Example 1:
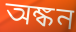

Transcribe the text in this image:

অঙ্কন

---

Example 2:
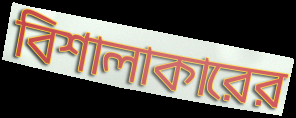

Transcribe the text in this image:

বিশালাকারের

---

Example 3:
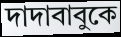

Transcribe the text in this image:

দাদাবাবুকে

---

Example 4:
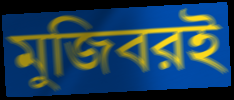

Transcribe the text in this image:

মুজিবরই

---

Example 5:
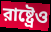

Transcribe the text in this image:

রাষ্ট্রেও